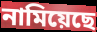
নামিয়েছে